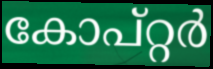
കോപ്റ്റർ